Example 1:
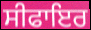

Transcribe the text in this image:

ਸੀਫਾਇਰ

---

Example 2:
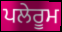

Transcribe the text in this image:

ਪਲੇਰੂਮ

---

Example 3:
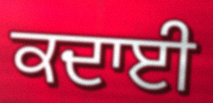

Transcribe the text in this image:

ਕਦਾਈ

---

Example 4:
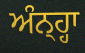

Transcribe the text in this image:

ਅੰਨ੍ਹ੍ਹਾ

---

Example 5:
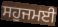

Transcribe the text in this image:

ਸਹੁਜਮਈ